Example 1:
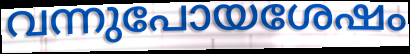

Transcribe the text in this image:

വന്നുപോയശേഷം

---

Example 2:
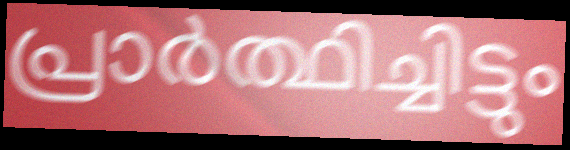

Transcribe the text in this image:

പ്രാർത്ഥിച്ചിട്ടും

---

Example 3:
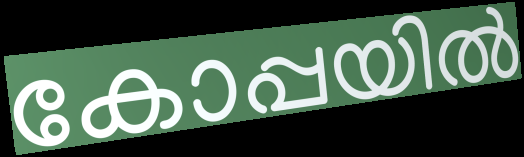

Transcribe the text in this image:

കോപ്പയിൽ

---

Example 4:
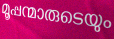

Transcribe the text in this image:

മൂപ്പന്മാരുടെയും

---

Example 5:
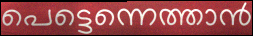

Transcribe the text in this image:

പെട്ടെന്നെത്താൻ